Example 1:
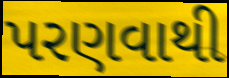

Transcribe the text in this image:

પરણવાથી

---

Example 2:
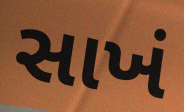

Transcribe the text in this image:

સાખં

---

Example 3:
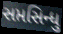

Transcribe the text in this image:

સપ્તસિન્ધુ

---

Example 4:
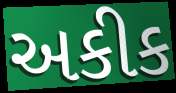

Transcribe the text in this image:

અકીક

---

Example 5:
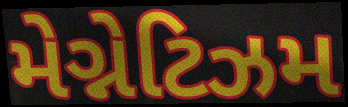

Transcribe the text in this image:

મેગ્નેટિઝમ